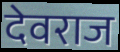
देवराज